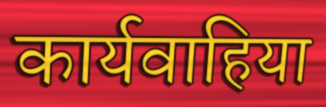
कार्यवाहिया